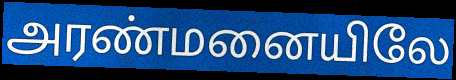
அரண்மனையிலே